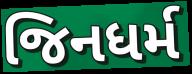
જિનધર્મ